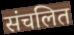
संचलित